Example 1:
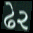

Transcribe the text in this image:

ઢેર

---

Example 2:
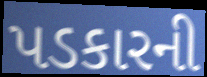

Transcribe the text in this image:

પડકારની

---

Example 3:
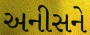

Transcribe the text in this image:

અનીસને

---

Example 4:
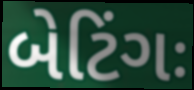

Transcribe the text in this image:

બેટિંગઃ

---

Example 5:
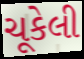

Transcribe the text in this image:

ચૂકેલી